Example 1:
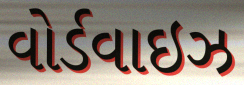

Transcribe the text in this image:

વોર્ડવાઇઝ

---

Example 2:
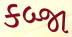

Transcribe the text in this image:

કબ્જા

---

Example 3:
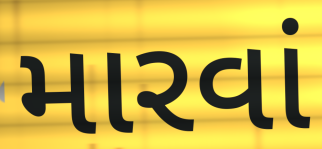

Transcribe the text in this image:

મારવાં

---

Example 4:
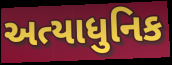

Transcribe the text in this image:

અત્યાધુનિક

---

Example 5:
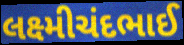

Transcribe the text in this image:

લક્ષ્મીચંદભાઈ